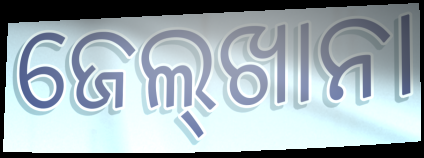
ଜେଲ୍‌ଖାନା